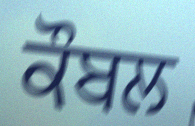
ਕੌਬਲ